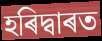
হৰিদ্বাৰত